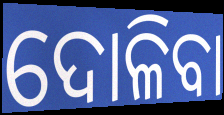
ଦୋଳିବା